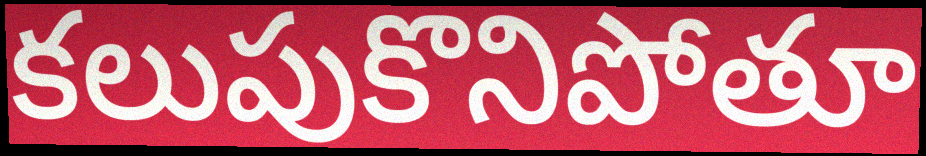
కలుపుకొనిపోతూ